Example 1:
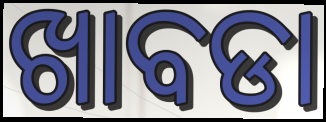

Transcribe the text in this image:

ଖାବଡା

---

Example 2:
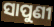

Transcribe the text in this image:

ସାପୁଣୀ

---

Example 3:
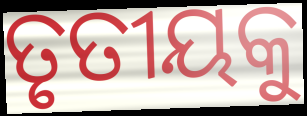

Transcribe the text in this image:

ତୃତୀୟକୁ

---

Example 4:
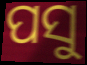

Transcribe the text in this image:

ପସୁ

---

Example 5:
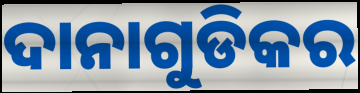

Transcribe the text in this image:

ଦାନାଗୁଡିକର